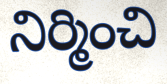
నిర్మించి